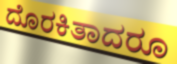
ದೊರಕಿತಾದರೂ